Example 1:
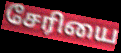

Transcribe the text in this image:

சேரியை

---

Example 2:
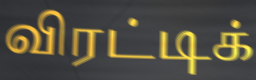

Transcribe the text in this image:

விரட்டிக்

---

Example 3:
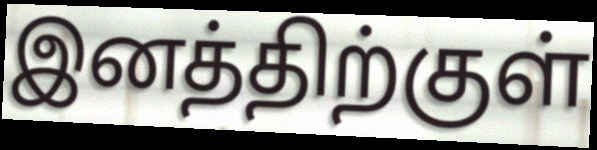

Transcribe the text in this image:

இனத்திற்குள்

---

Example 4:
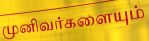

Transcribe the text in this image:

முனிவர்களையும்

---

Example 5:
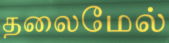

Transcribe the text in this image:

தலைமேல்